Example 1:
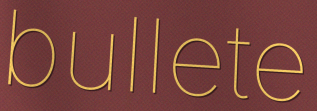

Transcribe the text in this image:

bullete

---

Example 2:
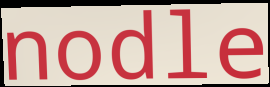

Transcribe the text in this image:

nodle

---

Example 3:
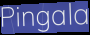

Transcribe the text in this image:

Pingala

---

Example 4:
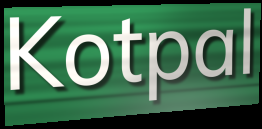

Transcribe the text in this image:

Kotpal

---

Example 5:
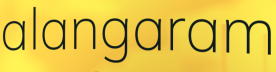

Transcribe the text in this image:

alangaram